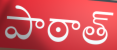
పాఠాత్